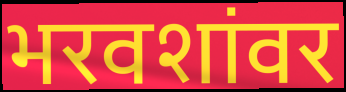
भरवशांवर